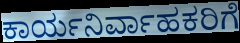
ಕಾರ್ಯನಿರ್ವಾಹಕರಿಗೆ